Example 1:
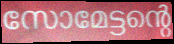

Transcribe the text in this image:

സോമേട്ടന്റെ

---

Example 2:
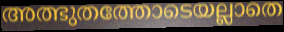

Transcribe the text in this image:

അത്ഭുതത്തോടെയല്ലാതെ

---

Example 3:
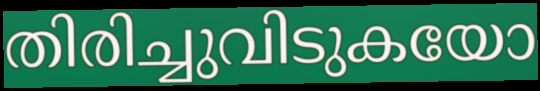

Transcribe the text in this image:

തിരിച്ചുവിടുകയോ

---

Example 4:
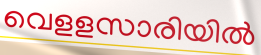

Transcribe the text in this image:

വെളളസാരിയിൽ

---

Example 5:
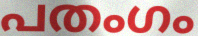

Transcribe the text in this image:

പതംഗം